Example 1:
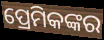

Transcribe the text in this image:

ପ୍ରେମିକଙ୍କର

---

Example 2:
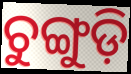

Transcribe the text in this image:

ଚୁଙ୍ଗୁଡ଼ି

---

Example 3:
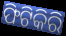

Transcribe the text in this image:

ଫିଟିକିରି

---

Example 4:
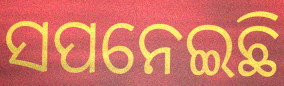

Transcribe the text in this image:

ସପନେଇଛି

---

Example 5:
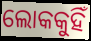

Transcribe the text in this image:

ଲୋକକୁହିଁ